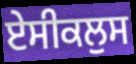
ਏਸੀਕਲੁਸ